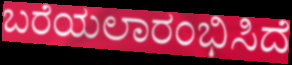
ಬರೆಯಲಾರಂಭಿಸಿದೆ